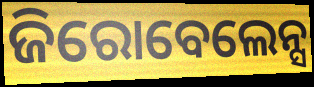
ଜିରୋବେଲେନ୍ସ